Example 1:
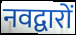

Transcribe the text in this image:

नवद्वारों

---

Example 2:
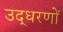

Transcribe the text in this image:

उद्धरणों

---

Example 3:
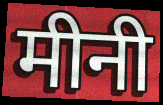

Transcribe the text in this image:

मीनी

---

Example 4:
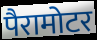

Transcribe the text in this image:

पैरामोटर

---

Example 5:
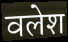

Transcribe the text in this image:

वलेश